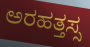
ಅರಹತ್ತಸ್ಸ